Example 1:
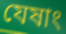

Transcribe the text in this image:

যেষাং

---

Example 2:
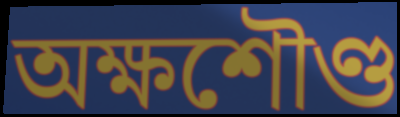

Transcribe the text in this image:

অক্ষশৌণ্ড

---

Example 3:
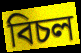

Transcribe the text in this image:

বিচল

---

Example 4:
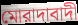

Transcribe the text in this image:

মোরাদাবাদী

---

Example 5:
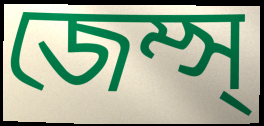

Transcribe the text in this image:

জেম্স্